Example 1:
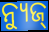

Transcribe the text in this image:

ନ୍ୟୁଜ୍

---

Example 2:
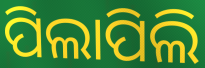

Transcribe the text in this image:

ପିଲାପିଲି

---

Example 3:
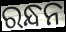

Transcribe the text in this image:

ରନ୍ଧନ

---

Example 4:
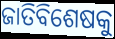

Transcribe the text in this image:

ଜାତିବିଶେଷକୁ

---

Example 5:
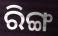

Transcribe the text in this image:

ରିଙ୍ଗ